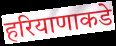
हरियाणाकडे